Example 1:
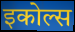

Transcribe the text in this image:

इकोल्स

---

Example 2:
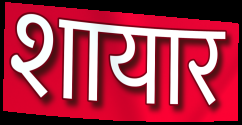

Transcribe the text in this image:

शायार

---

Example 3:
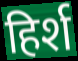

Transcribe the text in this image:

हिर्श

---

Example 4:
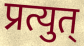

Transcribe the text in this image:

प्रत्युत्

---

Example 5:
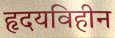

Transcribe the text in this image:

हृदयविहीन